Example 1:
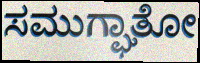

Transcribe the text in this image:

ಸಮುಗ್ಘಾತೋ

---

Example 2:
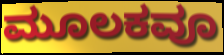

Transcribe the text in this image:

ಮೂಲಕವೂ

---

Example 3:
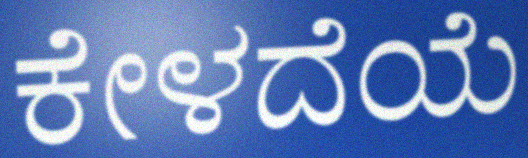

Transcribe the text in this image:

ಕೇಳದೆಯೆ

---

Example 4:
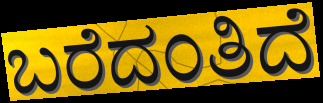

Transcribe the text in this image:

ಬರೆದಂತಿದೆ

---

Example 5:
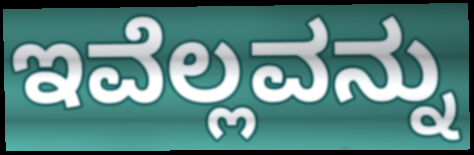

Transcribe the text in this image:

ಇವೆಲ್ಲವನ್ನು